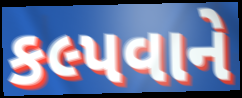
કલ્પવાને